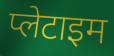
प्लेटाइम